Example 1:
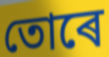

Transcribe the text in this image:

তোৰে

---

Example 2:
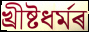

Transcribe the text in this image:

খ্ৰীষ্টধৰ্মৰ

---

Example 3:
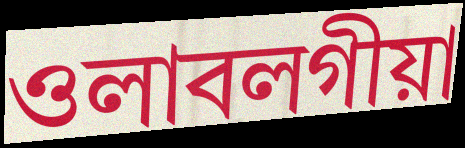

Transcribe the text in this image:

ওলাবলগীয়া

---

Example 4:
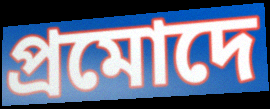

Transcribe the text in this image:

প্ৰমোদে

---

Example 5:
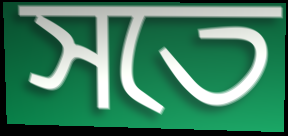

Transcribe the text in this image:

সতে